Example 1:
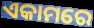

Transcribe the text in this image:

ଏକାମରେ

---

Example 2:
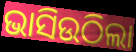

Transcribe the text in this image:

ଭାସିଉଠିଲା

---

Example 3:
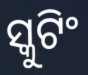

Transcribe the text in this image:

ସ୍କୁଟିଂ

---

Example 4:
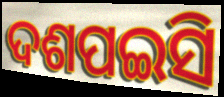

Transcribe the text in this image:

ଦଶପଇସି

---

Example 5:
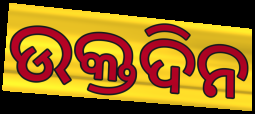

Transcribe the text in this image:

ଉକ୍ତଦିନ